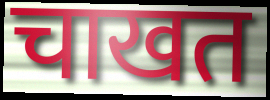
चाखत